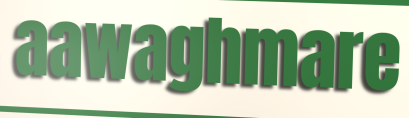
aawaghmare